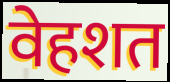
वेहशत